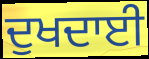
ਦੁਖਦਾਈ